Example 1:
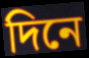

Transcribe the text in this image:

দিনে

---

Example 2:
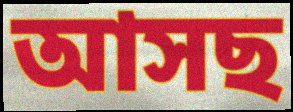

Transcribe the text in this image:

আসছ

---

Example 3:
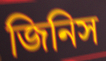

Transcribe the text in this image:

জিনিস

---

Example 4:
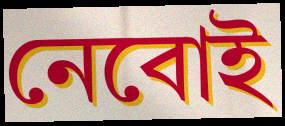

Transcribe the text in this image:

নেবোই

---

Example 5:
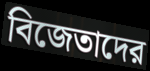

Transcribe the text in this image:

বিজেতাদের